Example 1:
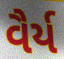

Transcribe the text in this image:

વૈર્ય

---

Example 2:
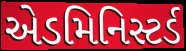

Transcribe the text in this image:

એડમિનિસ્ટર્ડ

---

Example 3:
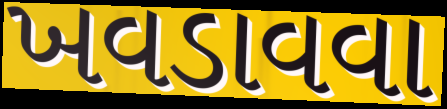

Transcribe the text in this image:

ખવડાવવા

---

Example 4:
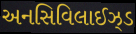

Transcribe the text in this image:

અનસિવિલાઈઝ્ડ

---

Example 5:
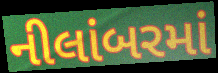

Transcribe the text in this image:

નીલાંબરમાં